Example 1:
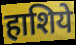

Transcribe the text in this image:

हाशिये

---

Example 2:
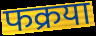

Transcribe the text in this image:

फक्रया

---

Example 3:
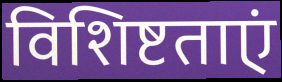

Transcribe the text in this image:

विशिष्टताएं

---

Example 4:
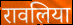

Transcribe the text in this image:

रावलिया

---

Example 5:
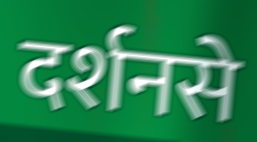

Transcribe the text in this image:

दर्शनसे